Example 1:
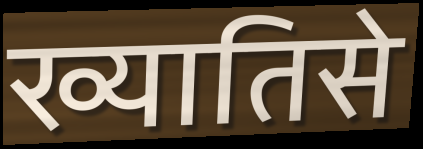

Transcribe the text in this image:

ख्यातिसे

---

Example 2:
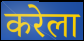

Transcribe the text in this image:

करेला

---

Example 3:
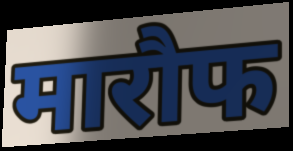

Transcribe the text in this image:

मारौफ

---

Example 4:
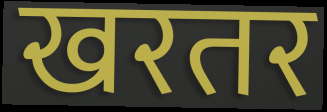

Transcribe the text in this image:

खरतर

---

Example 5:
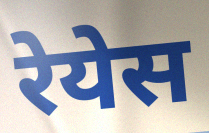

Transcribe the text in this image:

रेयेस